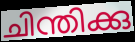
ചിന്തിക്കു